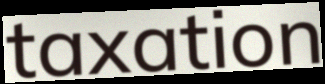
taxation